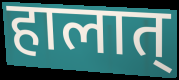
हालात्